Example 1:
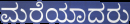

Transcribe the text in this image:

ಮರೆಯಾದರು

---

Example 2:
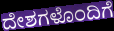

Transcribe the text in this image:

ದೇಶಗಳೊಂದಿಗೆ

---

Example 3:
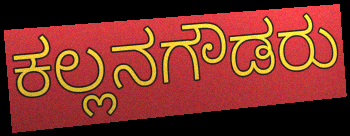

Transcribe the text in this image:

ಕಲ್ಲನಗೌಡರು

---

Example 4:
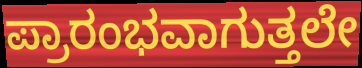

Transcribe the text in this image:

ಪ್ರಾರಂಭವಾಗುತ್ತಲೇ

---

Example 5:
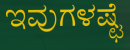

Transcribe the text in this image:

ಇವುಗಳಷ್ಟೆ